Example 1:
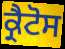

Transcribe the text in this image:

ਕ੍ਰੈਟੋਸ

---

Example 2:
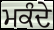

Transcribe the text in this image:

ਮਕੰਦੇ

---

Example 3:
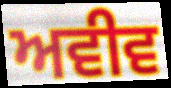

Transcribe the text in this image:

ਅਵੀਵ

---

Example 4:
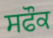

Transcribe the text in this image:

ਸਫੌਕ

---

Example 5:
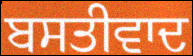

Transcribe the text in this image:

ਬਸਤੀਵਾਦ